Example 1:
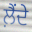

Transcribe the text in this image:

ਲ਼ੈਂਦੇ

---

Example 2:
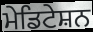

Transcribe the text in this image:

ਮੇਡਿਟੇਸ਼ਨ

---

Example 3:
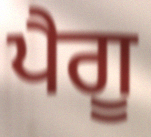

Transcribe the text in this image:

ਪੈਗੂ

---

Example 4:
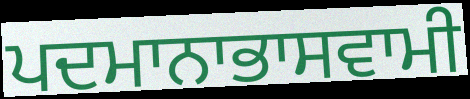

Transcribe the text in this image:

ਪਦਮਾਨਾਭਾਸਵਾਮੀ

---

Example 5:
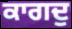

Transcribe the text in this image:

ਕਾਗਦੁ